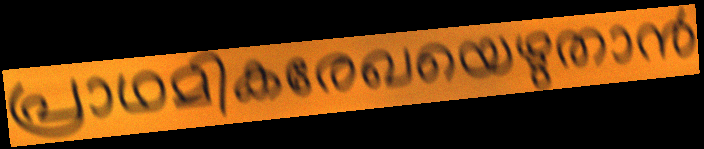
പ്രാഥമികരേഖയെഴുതാൻ